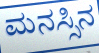
ಮನಸ್ಸಿನ